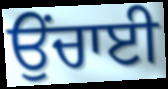
ਉਂਚਾਈ